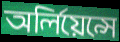
অর্লিয়েন্সে